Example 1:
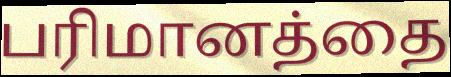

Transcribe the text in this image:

பரிமானத்தை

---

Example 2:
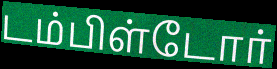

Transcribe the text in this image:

டம்பிள்டோர்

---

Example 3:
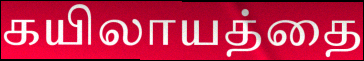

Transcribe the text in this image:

கயிலாயத்தை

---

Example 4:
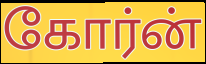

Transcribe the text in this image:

கோர்ன்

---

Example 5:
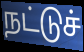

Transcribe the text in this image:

நட்டுச்